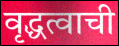
वृद्धत्वाची